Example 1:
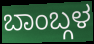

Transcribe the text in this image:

ಬಾಂಬ್ಗಳ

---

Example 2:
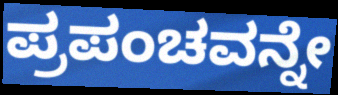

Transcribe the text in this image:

ಪ್ರಪಂಚವನ್ನೇ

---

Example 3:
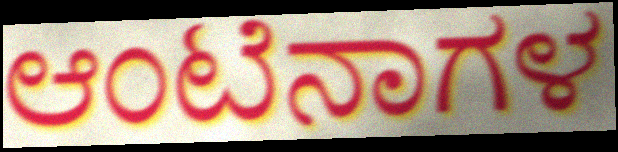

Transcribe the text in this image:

ಆಂಟೆನಾಗಳ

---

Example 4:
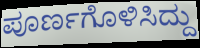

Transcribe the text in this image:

ಪೂರ್ಣಗೊಳಿಸಿದ್ದು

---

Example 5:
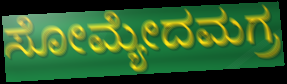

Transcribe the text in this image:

ಸೋಮ್ಯೇದಮಗ್ರ